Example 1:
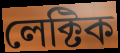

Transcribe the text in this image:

লেক্টিক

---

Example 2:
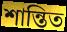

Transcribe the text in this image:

শান্তিত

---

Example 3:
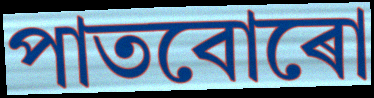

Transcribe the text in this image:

পাতবোৰো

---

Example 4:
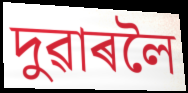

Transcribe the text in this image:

দুৱাৰলৈ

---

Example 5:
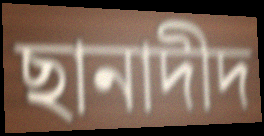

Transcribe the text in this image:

ছানাদীদ